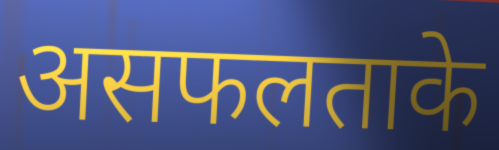
असफलताके